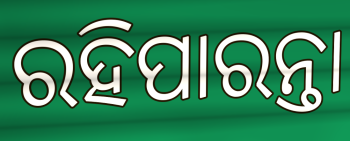
ରହିପାରନ୍ତା